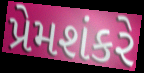
પ્રેમશંકરે